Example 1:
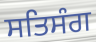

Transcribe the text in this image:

ਸਤਿਸੰਗ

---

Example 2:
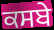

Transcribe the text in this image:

ਕਸਬੇ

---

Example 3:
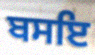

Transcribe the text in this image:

ਬਸਇ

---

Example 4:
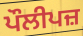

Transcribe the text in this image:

ਪੌਲੀਪਜ਼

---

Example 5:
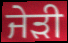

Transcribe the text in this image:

ਜੇੜੀ